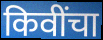
किवींचा